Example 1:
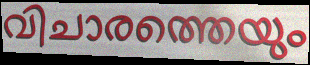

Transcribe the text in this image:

വിചാരത്തെയും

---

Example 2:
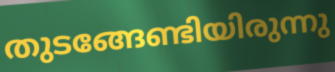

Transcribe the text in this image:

തുടങ്ങേണ്ടിയിരുന്നു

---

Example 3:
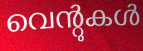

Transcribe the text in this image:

വെന്റുകൾ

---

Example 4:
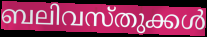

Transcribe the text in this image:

ബലിവസ്തുക്കൾ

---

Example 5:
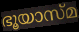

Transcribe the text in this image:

ഭൂയാസ്മ